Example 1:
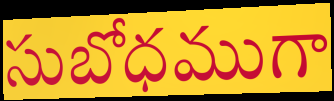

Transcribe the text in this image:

సుబోధముగా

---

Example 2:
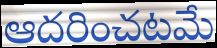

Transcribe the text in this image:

ఆదరించటమే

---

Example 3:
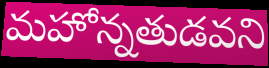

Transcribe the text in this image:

మహోన్నతుడవని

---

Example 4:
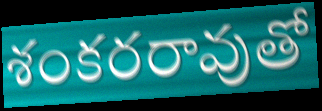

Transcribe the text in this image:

శంకరరావుతో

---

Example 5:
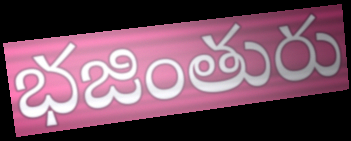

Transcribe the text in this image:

భజింతురు